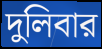
দুলিবার